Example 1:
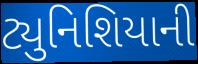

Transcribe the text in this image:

ટ્યુનિશિયાની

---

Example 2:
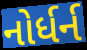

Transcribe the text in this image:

નોર્ધર્ન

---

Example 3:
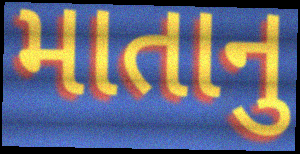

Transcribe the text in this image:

માતાનુ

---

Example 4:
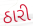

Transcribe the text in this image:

ઠારી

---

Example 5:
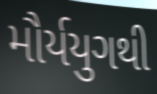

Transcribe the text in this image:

મૌર્યયુગથી